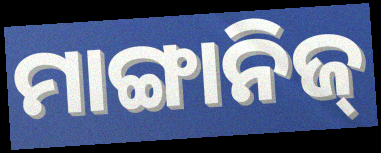
ମାଙ୍ଗାନିଜ୍